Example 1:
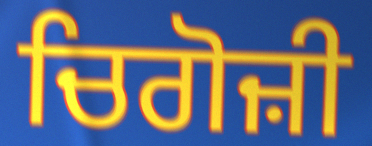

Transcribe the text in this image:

ਚਿਗੋਜ਼ੀ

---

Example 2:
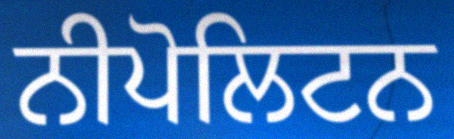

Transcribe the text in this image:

ਨੀਪੋਲਿਟਨ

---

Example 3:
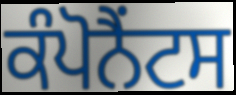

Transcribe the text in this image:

ਕੰਪੋਨੈਂਟਸ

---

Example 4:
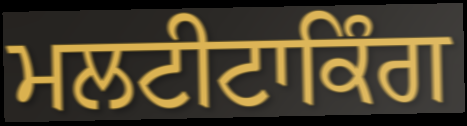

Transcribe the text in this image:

ਮਲਟੀਟਾਕਿੰਗ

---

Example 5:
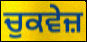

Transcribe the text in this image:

ਚੁਕਵੇਜ਼